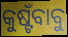
କୁଷ୍ଟଁବାବୁ